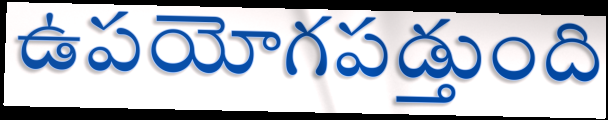
ఉపయోగపడ్తుంది